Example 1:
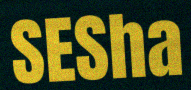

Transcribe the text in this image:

SESha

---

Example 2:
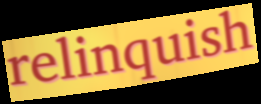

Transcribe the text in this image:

relinquish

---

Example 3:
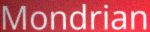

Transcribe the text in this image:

Mondrian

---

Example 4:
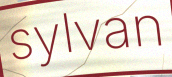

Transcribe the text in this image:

sylvan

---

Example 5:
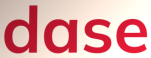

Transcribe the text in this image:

dase